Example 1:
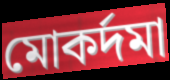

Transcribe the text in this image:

মোকৰ্দমা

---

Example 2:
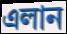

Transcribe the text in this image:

এলান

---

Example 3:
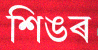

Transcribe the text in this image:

শিঙৰ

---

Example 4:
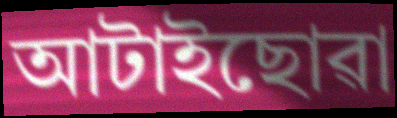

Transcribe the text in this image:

আটাইছোৱা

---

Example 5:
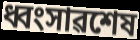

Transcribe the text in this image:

ধ্বংসাৱশেষ